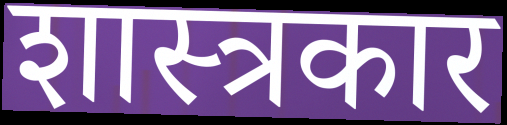
शास्त्रकार